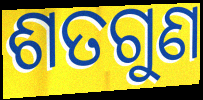
ଶତଗୁଣ